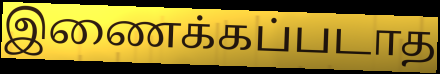
இணைக்கப்படாத